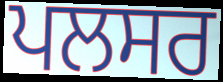
ਪਲਸਰ